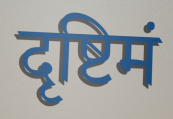
दृष्टिमं